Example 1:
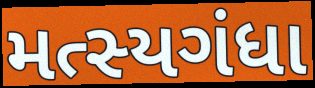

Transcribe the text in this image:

મત્સ્યગંધા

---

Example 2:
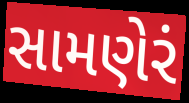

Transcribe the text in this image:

સામણેરં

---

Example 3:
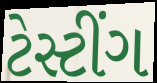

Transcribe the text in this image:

ટેસ્ટીંગ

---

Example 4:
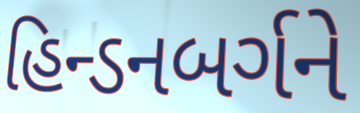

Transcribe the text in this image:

હિન્ડનબર્ગને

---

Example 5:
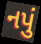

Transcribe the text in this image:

નપું